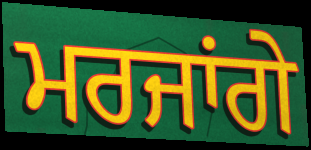
ਮਰਜਾਂਗੇ